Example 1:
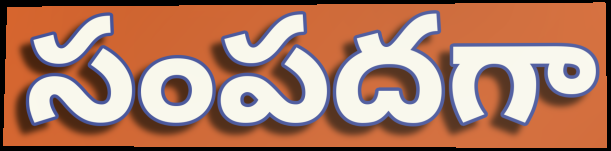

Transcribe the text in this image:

సంపదగా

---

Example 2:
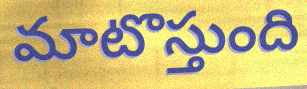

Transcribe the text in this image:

మాటొస్తుంది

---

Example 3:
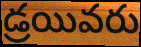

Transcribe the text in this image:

డ్రయివరు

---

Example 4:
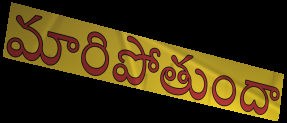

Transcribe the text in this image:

మారిపోతుందా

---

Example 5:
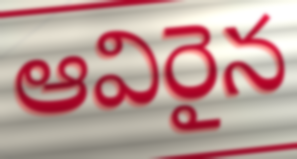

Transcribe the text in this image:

ఆవిరైన